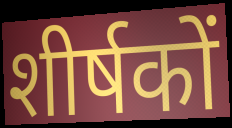
शीर्षकों